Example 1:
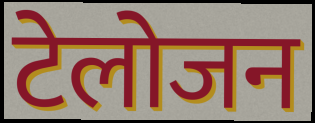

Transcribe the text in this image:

टेलोजन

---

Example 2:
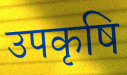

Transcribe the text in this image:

उपकृषि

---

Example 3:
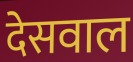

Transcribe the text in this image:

देसवाल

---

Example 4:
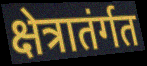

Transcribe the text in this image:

क्षेत्रातंर्गत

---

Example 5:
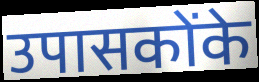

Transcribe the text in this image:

उपासकोंके